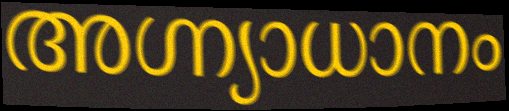
അഗ്ന്യാധാനം